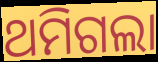
ଥମିଗଲା